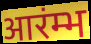
आरंम्भ